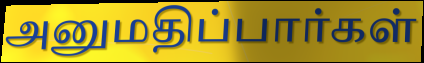
அனுமதிப்பார்கள்